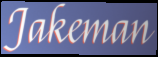
Jakeman